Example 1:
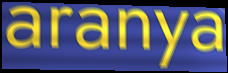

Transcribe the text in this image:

aranya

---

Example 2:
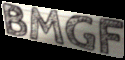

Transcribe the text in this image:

BMGF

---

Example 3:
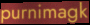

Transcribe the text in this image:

purnimagk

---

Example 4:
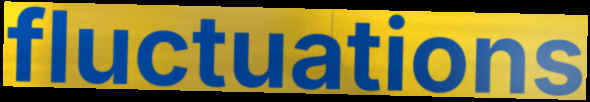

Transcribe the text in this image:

fluctuations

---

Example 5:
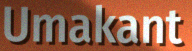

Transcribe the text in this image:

Umakant